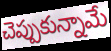
చెప్పుకున్నామే